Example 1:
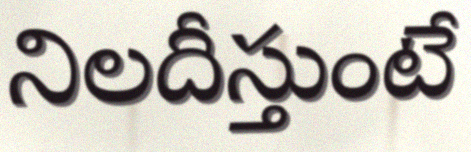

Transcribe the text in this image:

నిలదీస్తుంటే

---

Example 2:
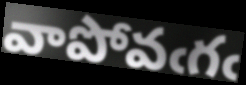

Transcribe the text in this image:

వాపోవఁగఁ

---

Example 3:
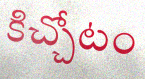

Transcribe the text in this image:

కిచ్చోటం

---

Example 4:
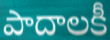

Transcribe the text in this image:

పాదాలకీ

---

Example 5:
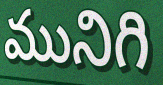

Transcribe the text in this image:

మునిగి